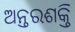
ଅନ୍ତରଶକ୍ତି